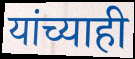
यांच्याही